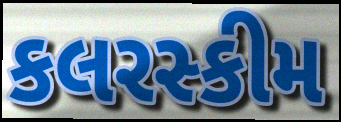
કલરસ્કીમ